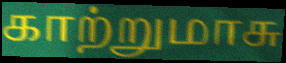
காற்றுமாசு